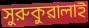
সুৰুকুৱালাই